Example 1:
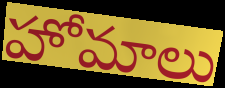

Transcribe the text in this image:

హోమాలు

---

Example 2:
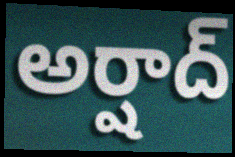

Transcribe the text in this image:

అర్షాద్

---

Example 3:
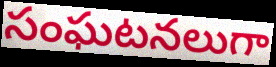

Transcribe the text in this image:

సంఘటనలుగా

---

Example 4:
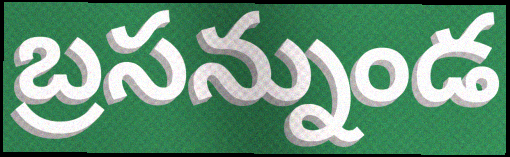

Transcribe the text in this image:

బ్రసన్నుండ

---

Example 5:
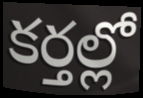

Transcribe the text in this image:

కర్తల్లో